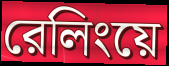
রেলিংয়ে